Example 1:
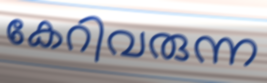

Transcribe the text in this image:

കേറിവരുന്ന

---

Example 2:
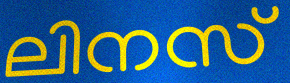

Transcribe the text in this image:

ലിനസ്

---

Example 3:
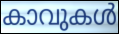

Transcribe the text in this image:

കാവുകൾ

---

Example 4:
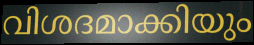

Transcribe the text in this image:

വിശദമാക്കിയും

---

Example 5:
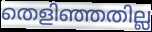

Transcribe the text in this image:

തെളിഞ്ഞതില്ല